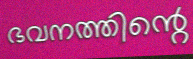
ഭവനത്തിന്റെ